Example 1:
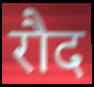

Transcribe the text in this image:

रौद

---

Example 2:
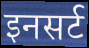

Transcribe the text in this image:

इनसर्ट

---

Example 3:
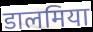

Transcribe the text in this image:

डालमिया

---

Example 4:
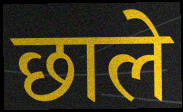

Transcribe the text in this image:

छाले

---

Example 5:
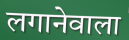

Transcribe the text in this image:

लगानेवाला